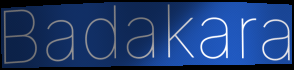
Badakara